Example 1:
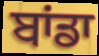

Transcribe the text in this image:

ਬਾਂਡਾ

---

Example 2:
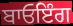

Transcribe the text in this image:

ਬਾਓਇੰਗ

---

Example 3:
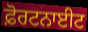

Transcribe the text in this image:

ਫ਼ੋਰਟਨਾਈਟ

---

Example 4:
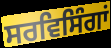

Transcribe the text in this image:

ਸਰਵਿਸਿੰਗਾਂ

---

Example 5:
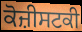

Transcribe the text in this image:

ਕੋਜ਼ੀਸਟਕੀ